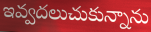
ఇవ్వదలుచుకున్నాను